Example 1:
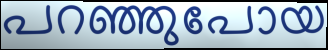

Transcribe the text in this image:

പറഞ്ഞുപോയ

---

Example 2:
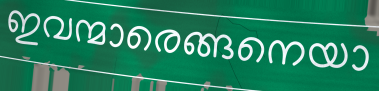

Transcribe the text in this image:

ഇവന്മാരെങ്ങനെയാ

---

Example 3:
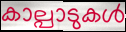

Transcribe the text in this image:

കാല്പാടുകൾ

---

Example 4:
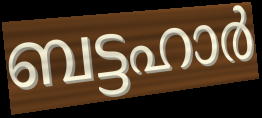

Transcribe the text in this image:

ബട്ടഹാർ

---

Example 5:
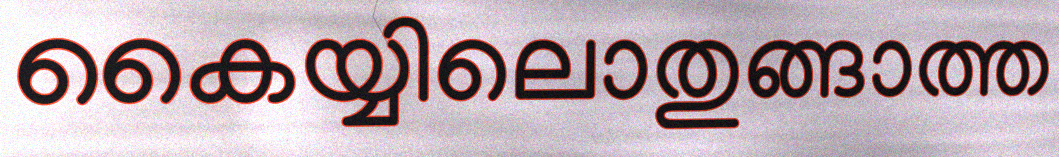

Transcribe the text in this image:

കൈയ്യിലൊതുങ്ങാത്ത